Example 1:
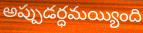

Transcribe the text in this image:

అప్పుడర్ధమయ్యింది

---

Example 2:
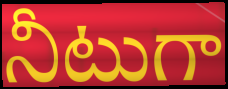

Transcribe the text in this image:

నీటుగా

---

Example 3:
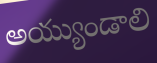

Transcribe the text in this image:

అయ్యుండాలి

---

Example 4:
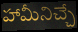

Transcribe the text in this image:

హామీనిచ్చే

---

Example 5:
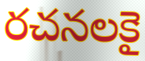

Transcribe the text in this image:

రచనలకై